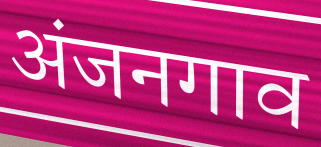
अंजनगाव